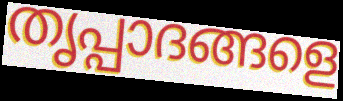
തൃപ്പാദങ്ങളെ